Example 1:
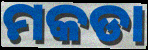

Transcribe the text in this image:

ମକଡା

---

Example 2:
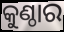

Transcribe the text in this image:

କୁଣ୍ଠାର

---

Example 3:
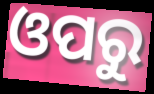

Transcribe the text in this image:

ଓପରୁ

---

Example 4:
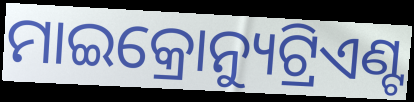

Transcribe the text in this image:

ମାଇକ୍ରୋନ୍ୟୁଟ୍ରିଏଣ୍ଟ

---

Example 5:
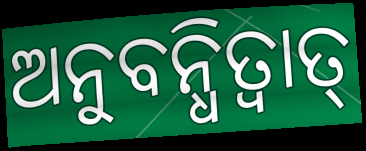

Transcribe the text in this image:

ଅନୁବନ୍ଧିତ୍ଵାତ୍